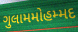
ગુલામમોહમ્મદ